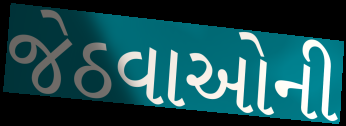
જેઠવાઓની